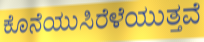
ಕೊನೆಯುಸಿರೆಳೆಯುತ್ತವೆ